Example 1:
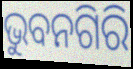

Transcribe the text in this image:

ଭୁବନଗିରି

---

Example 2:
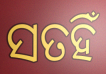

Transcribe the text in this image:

ସତହିଁ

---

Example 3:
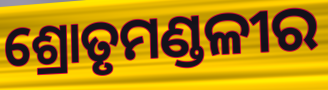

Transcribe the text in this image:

ଶ୍ରୋତୃମଣ୍ଡଳୀର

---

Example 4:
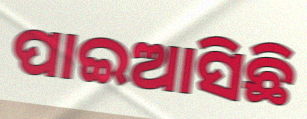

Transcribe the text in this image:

ପାଇଆସିଛି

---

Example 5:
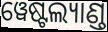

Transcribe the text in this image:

ୱେଷ୍ଟଲ୍ୟାଣ୍ଡ